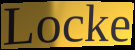
Locke